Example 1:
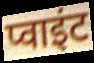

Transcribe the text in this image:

प्वाइंट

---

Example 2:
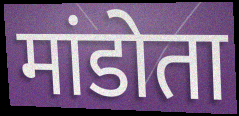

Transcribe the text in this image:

मांडोता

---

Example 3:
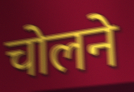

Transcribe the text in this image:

चोलने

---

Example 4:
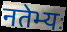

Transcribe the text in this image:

नतेभ्यः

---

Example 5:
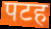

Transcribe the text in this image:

पटह